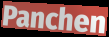
Panchen